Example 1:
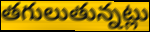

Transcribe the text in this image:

తగులుతున్నట్లు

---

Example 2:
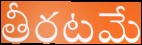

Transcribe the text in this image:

తీరటమే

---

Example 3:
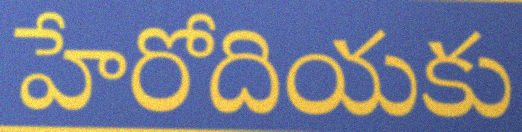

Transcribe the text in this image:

హేరోదియకు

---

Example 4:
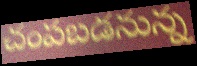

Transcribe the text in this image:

చంపబడనున్న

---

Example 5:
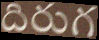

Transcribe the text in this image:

దిరుగ